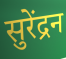
सुरेंद्रन